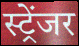
स्ट्रेंजर